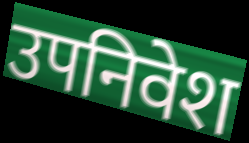
उपनिवेश